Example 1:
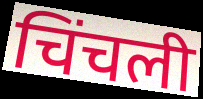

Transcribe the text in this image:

चिंचली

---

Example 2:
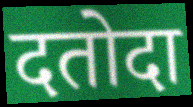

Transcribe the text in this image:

दतोदा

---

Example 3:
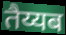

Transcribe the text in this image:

तैय्यब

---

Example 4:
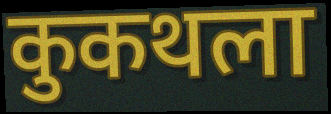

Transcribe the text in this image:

कुकथला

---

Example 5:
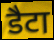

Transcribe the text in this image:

डैटा